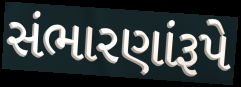
સંભારણાંરૂપે